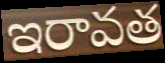
ఇరావత